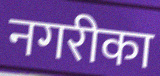
नगरीका